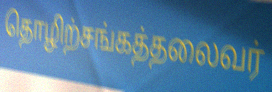
தொழிற்சங்கத்தலைவர்